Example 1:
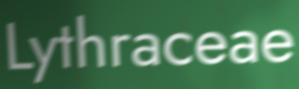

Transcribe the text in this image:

Lythraceae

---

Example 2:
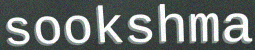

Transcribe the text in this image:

sookshma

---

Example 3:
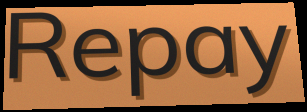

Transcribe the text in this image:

Repay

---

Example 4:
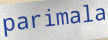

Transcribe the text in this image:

parimala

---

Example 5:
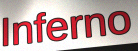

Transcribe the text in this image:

Inferno